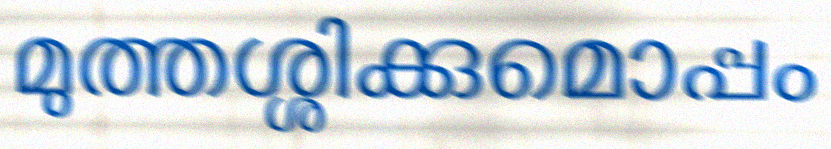
മുത്തശ്ശിക്കുമൊപ്പം